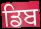
ਡਿਬ